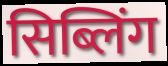
सिब्लिंग